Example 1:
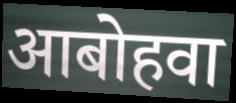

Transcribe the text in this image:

आबोहवा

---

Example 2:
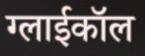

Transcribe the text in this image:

ग्लाईकॉल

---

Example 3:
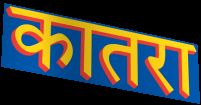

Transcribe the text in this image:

कातरा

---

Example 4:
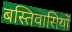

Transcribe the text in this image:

बस्तिवासियों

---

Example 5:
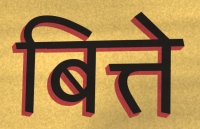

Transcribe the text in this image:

बित्ते